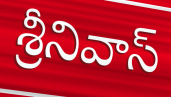
శ్రీనివాస్